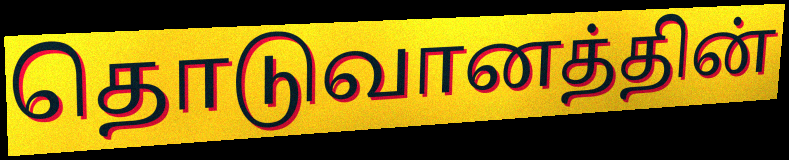
தொடுவானத்தின்